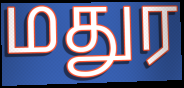
மதுர